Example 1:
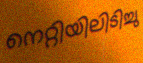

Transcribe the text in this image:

നെറ്റിയിലിടിച്ചു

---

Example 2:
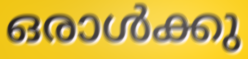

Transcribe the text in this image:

ഒരാൾക്കു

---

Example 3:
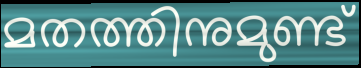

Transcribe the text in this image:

മതത്തിനുമുണ്ട്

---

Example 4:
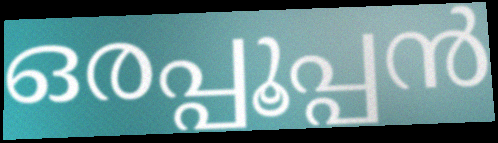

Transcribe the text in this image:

ഒരപ്പൂപ്പൻ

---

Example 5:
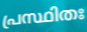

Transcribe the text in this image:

പ്രസ്ഥിതഃ